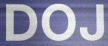
DOJ